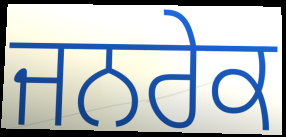
ਜਨਰੇਕ